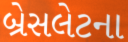
બ્રેસલેટના